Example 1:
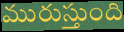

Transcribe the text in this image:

మురుస్తుంది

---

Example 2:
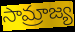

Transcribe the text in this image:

సామ్రాజ్య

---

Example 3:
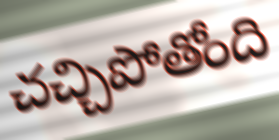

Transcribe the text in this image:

చచ్చిపోతోంది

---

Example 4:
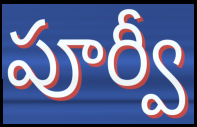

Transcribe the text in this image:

పూర్వీ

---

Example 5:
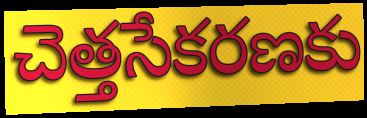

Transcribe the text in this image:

చెత్తసేకరణకు